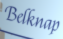
Belknap